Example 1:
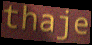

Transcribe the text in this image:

thaje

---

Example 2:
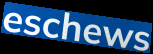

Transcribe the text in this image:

eschews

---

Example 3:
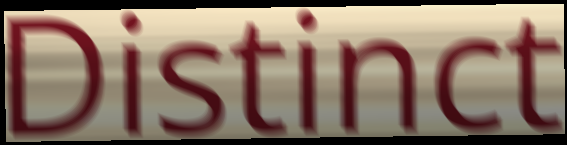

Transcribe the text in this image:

Distinct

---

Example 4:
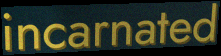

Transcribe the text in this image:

incarnated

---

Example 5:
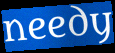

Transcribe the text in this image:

needy